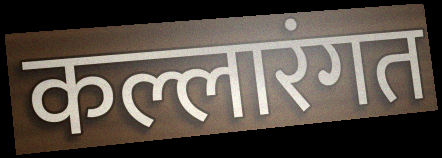
कल्लारंगत